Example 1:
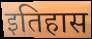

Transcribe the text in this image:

इतिहास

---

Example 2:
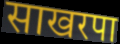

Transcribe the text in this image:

साखरपा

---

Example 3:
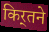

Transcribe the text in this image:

किर्तने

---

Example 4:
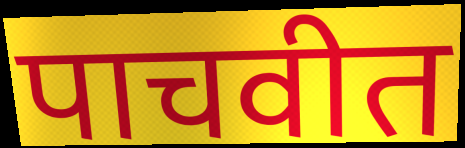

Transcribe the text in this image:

पाचवीत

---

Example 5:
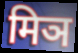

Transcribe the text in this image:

मिञ